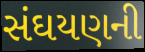
સંઘયણની